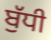
ਬੁੱਧੀ